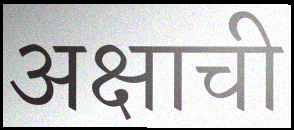
अक्षाची